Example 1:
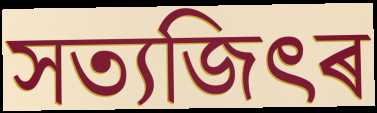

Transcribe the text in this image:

সত্যজিৎৰ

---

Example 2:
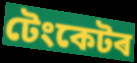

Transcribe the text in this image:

টেংকেটৰ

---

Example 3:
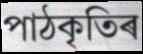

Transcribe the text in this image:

পাঠকৃতিৰ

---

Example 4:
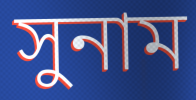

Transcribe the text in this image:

সুনাম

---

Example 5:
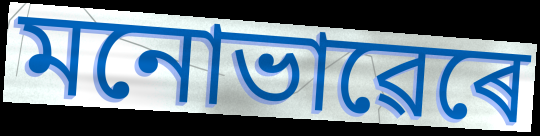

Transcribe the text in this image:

মনোভাৱেৰে